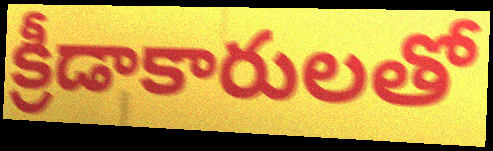
క్రీడాకారులతో